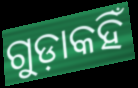
ଗୁଡ଼ାକହିଁ